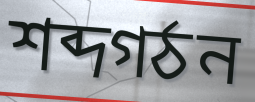
শব্দগঠন